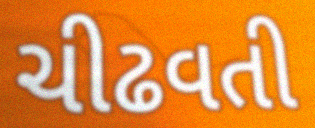
ચીઢવતી